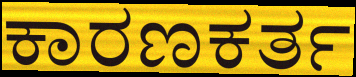
ಕಾರಣಕರ್ತ